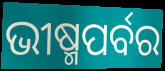
ଭୀଷ୍ମପର୍ବର